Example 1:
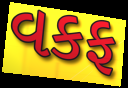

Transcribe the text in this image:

વકફ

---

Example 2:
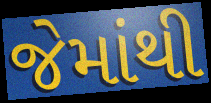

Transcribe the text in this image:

જેમાંથી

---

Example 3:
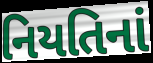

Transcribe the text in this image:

નિયતિનાં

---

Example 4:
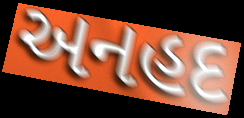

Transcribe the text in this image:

અનહદ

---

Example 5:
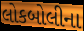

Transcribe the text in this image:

લોકબોલીના